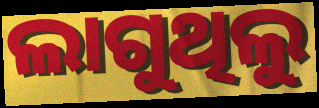
ଲାଗୁଥିଲୁ